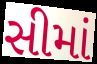
સીમાં